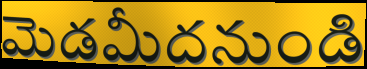
మెడమీదనుండి